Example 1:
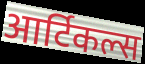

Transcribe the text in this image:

आर्टिकल्स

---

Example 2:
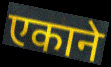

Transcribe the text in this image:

एकाने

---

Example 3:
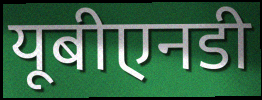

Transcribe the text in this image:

यूबीएनडी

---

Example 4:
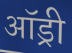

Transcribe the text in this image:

ऑड्री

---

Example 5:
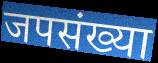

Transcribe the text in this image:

जपसंख्या